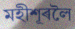
মহীশূৰলৈ